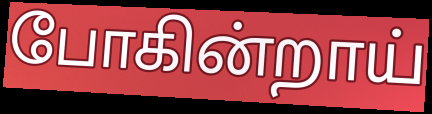
போகின்றாய்